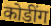
कोडींग